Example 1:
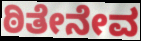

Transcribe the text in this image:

ಠಿತೇನೇವ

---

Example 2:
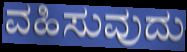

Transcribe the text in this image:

ವಹಿಸುವುದು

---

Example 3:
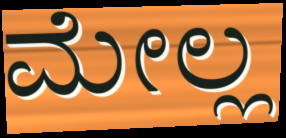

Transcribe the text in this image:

ಮೇಲ್ಲ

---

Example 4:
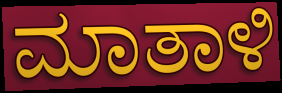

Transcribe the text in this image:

ಮಾತಾಳಿ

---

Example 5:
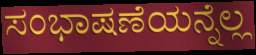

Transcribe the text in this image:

ಸಂಭಾಷಣೆಯನ್ನೆಲ್ಲ